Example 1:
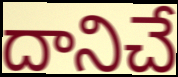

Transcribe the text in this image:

దానిచే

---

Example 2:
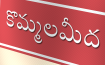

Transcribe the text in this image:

కొమ్మలమీద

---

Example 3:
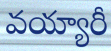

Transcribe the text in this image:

వయ్యారీ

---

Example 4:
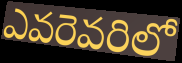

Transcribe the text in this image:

ఎవరెవరిలో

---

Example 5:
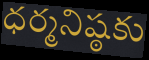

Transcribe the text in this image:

ధర్మనిష్ఠకు